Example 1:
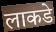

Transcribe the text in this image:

लाकडे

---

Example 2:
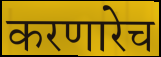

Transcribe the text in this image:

करणारेच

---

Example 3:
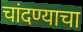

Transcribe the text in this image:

चांदण्याचा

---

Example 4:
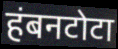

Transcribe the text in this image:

हंबनटोटा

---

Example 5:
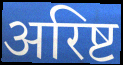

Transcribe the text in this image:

अरिष्ट